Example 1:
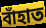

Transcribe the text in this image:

বাঁহাত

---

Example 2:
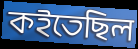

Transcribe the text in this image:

কইতেছিল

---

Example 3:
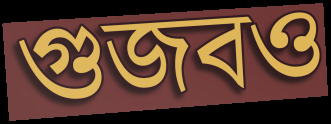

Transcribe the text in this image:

গুজবও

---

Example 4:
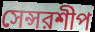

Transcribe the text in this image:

সেন্সরশীপ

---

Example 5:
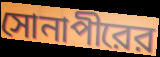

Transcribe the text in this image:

সোনাপীরের